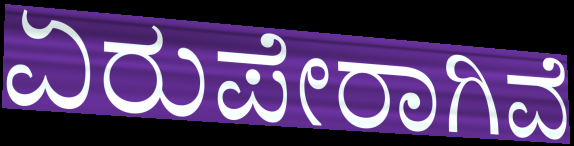
ಏರುಪೇರಾಗಿವೆ